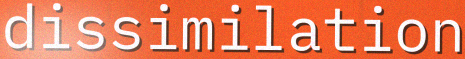
dissimilation